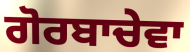
ਗੋਰਬਾਚੇਵਾ